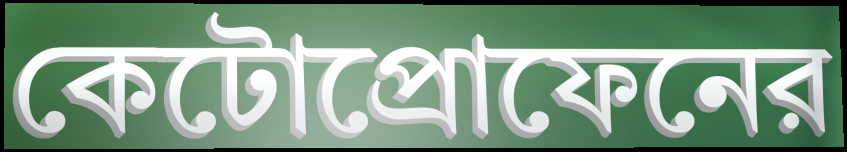
কেটোপ্রোফেনের